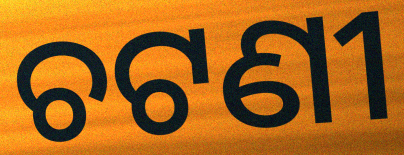
ଚଟଣୀ